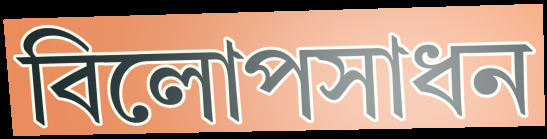
বিলোপসাধন